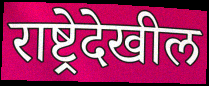
राष्ट्रेदेखील